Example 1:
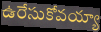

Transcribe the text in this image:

ఉరేసుకోవయ్యా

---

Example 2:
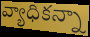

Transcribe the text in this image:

వ్యాధికన్నా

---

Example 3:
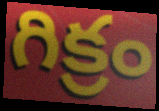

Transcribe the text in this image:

గిక్రం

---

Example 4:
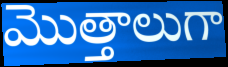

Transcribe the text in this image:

మొత్తాలుగా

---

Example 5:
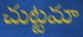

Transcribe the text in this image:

చుట్టమా